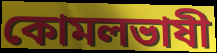
কোমলভাষী